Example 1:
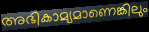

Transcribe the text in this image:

അഭികാമ്യമാണെങ്കിലും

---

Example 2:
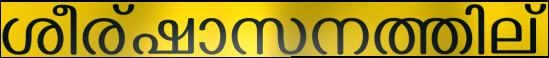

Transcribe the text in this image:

ശീര്ഷാസനത്തില്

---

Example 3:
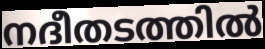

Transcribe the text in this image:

നദീതടത്തിൽ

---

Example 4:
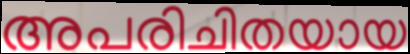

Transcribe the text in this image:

അപരിചിതയായ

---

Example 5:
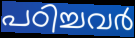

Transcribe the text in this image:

പഠിച്ചവർ